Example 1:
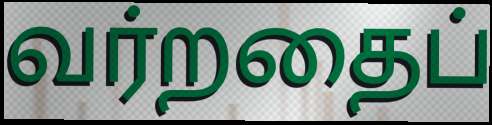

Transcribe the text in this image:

வர்றதைப்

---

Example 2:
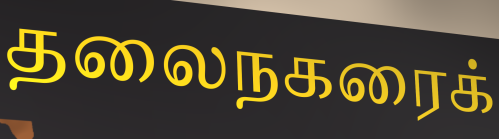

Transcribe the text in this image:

தலைநகரைக்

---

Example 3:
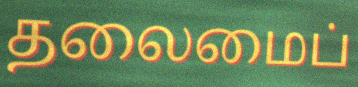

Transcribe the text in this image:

தலைமைப்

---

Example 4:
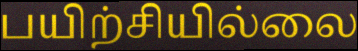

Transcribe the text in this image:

பயிற்சியில்லை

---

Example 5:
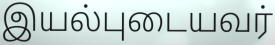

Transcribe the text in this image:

இயல்புடையவர்